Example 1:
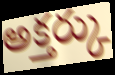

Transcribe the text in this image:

అక్తర్కు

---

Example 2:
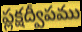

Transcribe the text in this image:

ప్లక్షద్వీపము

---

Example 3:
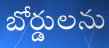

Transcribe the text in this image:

బోర్డులను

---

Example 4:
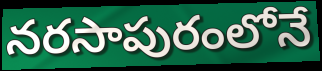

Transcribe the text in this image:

నరసాపురంలోనే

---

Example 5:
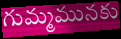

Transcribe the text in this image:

గుమ్మమునకు